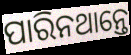
ପାରିନଥାନ୍ତେ